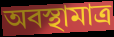
অবস্থামাত্র